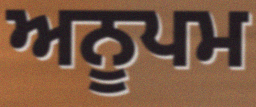
ਅਨੂਪਮ